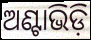
ଅଣ୍ଟାଭିଡ଼ି